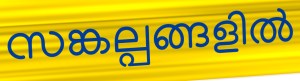
സങ്കല്പങ്ങളിൽ